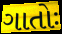
ગાતોઃ